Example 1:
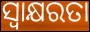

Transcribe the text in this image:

ସ୍ବାକ୍ଷରତା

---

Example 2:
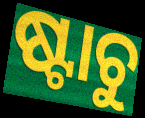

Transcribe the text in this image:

ଷ୍ଟାଚୁ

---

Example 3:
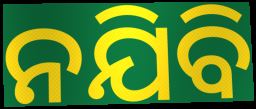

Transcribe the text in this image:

ନଯିବି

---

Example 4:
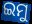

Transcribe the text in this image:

ଇମୁ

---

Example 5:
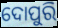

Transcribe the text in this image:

ଦୋପୁରି